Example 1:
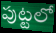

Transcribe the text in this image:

పుట్టలో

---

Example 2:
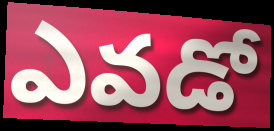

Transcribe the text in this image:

ఎవడో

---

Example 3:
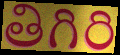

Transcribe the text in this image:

తిగిరి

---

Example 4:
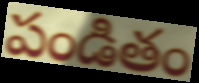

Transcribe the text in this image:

పండితం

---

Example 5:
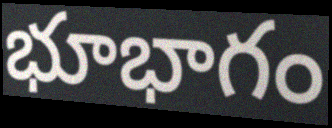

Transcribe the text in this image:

భూభాగం